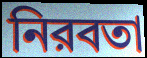
নিরবতা